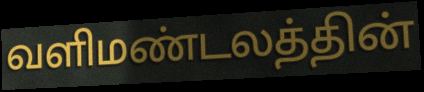
வளிமண்டலத்தின்